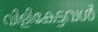
വിളികേട്ടവൾ